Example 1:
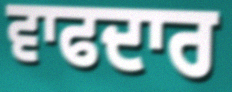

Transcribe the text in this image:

ਵਾਫਦਾਰ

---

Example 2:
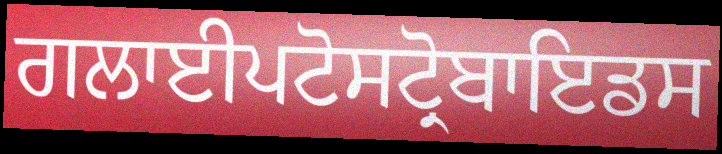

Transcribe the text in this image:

ਗਲਾਈਪਟੋਸਟ੍ਰੋਬਾਇਡਸ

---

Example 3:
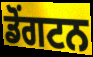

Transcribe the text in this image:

ਡੋਂਗਟਨ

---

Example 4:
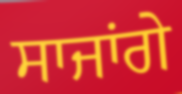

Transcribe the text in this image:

ਸਾਜਾਂਗੇ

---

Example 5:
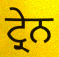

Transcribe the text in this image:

ਟ੍ਰੇਨ